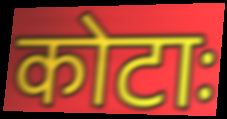
कोटाः